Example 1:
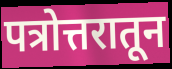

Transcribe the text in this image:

पत्रोत्तरातून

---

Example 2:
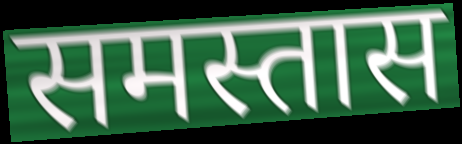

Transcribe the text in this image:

समस्तास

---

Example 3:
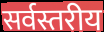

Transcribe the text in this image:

सर्वस्तरीय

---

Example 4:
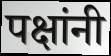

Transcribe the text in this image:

पक्षांनी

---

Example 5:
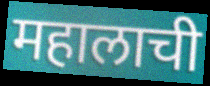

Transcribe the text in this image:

महालाची